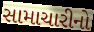
સામાચારીનો